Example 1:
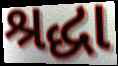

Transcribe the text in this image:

શ્રદ્ધા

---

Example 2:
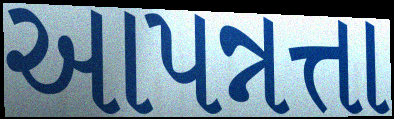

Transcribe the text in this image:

આપન્નત્તા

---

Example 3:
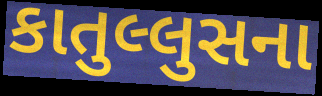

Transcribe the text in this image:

કાતુલ્લુસના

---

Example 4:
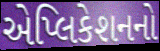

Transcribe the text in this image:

એપ્લિકેશનનો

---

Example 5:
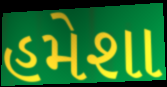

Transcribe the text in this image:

હમેશા